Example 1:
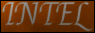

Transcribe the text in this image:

INTEL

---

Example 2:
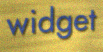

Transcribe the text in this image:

widget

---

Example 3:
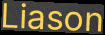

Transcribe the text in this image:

Liason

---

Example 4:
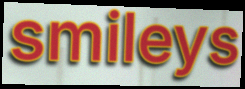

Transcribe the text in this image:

smileys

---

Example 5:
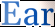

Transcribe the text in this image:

Ear